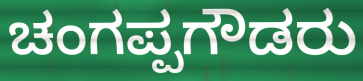
ಚಂಗಪ್ಪಗೌಡರು